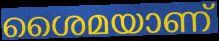
ശൈമയാണ്